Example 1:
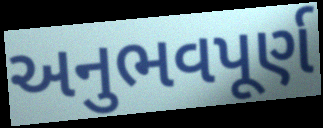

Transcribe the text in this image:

અનુભવપૂર્ણ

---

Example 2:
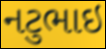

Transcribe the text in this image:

નટુભાઇ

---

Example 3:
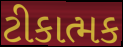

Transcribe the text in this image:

ટીકાત્મક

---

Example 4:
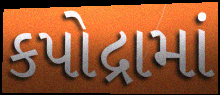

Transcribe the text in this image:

કપોદ્રામાં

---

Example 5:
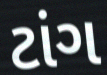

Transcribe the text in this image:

ટાંગ